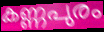
കണ്ണപുരം